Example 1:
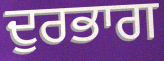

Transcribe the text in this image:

ਦੁਰਭਾਗ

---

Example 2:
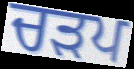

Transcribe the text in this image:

ਚੜਪ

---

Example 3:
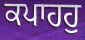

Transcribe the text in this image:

ਕਪਾਹਹੁ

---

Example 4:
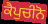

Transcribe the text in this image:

ਕੈਪੁਚੀਨੋ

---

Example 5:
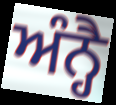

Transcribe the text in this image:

ਅੰਨ੍ਹੈ